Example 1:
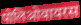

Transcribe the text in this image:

पोलिओवायरस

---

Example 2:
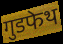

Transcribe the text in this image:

गुडफेथ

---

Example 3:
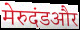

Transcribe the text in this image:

मेरुदंडऔर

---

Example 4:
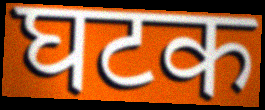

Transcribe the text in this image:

घटक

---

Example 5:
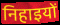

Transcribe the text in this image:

निहाइयों